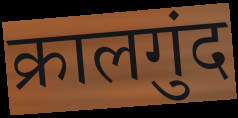
क्रालगुंद